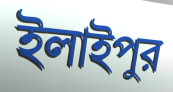
ইলাইপুর